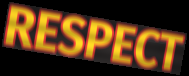
RESPECT